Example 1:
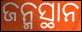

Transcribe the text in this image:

ଜନ୍ମସ୍ଥାନ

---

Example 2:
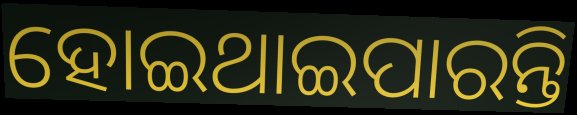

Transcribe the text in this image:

ହୋଇଥାଇପାରନ୍ତି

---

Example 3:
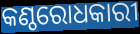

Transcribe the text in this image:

କଣ୍ଠରୋଧକାରୀ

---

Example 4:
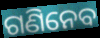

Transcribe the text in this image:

ଗଣିନେବ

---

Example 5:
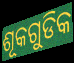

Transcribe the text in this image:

ଶୂକଗୁଡିକ